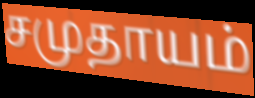
சமுதாயம்